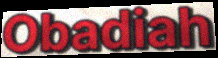
Obadiah